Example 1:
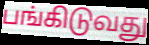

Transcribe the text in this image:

பங்கிடுவது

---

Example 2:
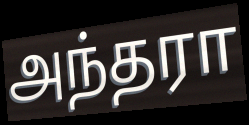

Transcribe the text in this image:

அந்தரா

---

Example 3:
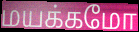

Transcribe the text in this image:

மயக்கமோ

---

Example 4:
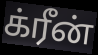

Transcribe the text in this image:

க்ரீன்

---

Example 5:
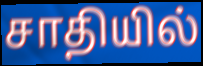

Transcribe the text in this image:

சாதியில்